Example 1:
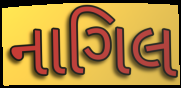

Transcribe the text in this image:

નાગિલ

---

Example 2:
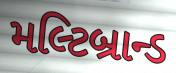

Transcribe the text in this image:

મલ્ટિબ્રાન્ડ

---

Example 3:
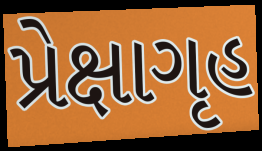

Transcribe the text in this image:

પ્રેક્ષાગૃહ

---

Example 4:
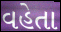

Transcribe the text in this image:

વહેતા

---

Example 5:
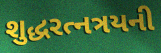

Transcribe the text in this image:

શુદ્ધરત્નત્રયની